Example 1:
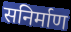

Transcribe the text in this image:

सनिर्माण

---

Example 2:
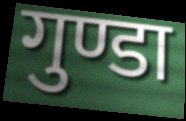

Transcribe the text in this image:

गुण्डा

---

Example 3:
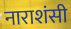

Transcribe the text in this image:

नाराशंसी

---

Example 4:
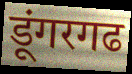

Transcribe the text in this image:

डूंगरगढ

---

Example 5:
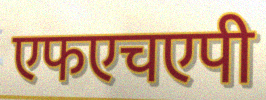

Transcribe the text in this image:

एफएचएपी